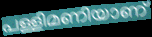
പള്ളിമണിയാണ്